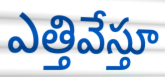
ఎత్తివేస్తూ